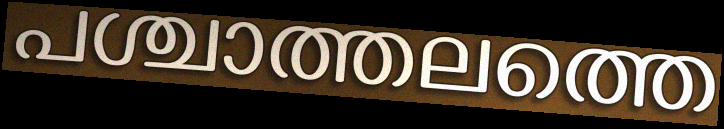
പശ്ചാത്തലത്തെ